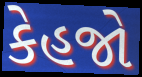
કેહજો